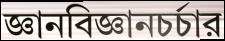
জ্ঞানবিজ্ঞানচর্চার